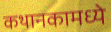
कथानकामध्ये